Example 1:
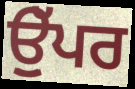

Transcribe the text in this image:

ਉੁੱਪਰ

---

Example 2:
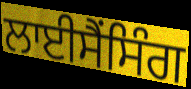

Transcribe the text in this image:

ਲਾਈਸੈਂਸਿੰਗ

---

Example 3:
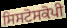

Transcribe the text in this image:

ਸਿਸਟੋਸਕੋਪੀ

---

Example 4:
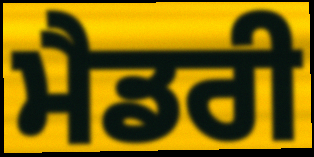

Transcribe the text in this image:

ਮੈਡਰੀ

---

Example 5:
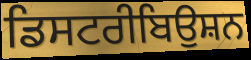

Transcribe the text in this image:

ਡਿਸਟਰੀਬਿਉਸ਼ਨ